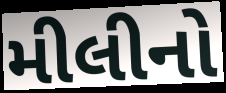
મીલીનો